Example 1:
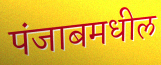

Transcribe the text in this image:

पंजाबमधील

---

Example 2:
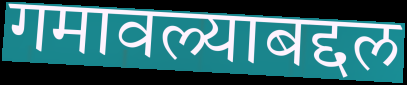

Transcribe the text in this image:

गमावल्याबद्दल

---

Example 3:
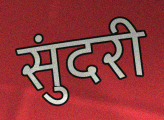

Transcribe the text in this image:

सुंदरी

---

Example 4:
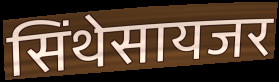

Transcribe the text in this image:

सिंथेसायजर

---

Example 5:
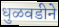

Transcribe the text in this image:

धुळवडीने